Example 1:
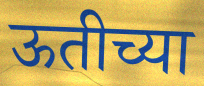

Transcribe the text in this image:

ऊतीच्या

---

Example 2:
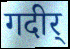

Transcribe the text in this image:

गदीर्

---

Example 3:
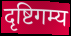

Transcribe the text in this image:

दृष्टिगम्य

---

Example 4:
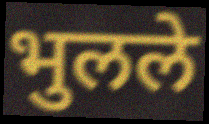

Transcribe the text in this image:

भुलले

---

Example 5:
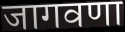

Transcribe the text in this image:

जागवणा